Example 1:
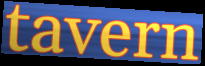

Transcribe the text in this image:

tavern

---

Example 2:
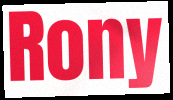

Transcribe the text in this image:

Rony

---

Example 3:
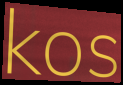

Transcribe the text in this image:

kos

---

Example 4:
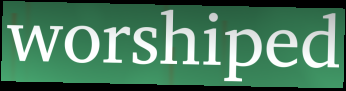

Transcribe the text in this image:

worshiped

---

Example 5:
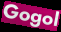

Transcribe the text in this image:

Gogol